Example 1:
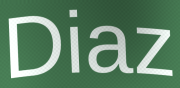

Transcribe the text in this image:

Diaz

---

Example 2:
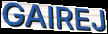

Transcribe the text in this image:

GAIREJ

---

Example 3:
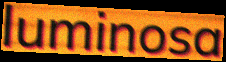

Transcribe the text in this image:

luminosa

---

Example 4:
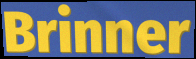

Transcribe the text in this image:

Brinner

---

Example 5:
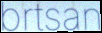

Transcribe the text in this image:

brtsan